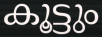
കൂട്ടും